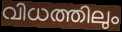
വിധത്തിലും